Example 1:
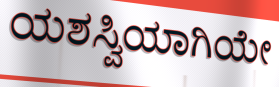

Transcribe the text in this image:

ಯಶಸ್ವಿಯಾಗಿಯೇ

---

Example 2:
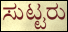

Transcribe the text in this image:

ಸುಟ್ಟರು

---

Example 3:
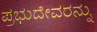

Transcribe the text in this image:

ಪ್ರಭುದೇವರನ್ನು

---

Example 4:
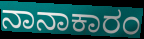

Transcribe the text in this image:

ನಾನಾಕಾರಂ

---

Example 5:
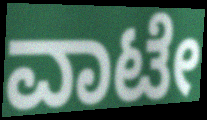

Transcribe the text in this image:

ವಾಟೇ